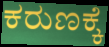
ಕರುಣಕ್ಕೆ